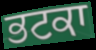
ਭਟਕਾ